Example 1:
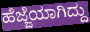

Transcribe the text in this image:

ಹೆಜ್ಜೆಯಾಗಿದ್ದು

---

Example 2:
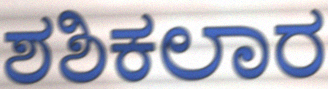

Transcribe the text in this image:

ಶಶಿಕಲಾರ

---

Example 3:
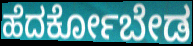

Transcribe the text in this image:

ಹೆದರ್ಕೋಬೇಡ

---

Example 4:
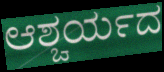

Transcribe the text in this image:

ಆಶ್ಚರ್ಯದ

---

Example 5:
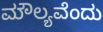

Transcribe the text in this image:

ಮೌಲ್ಯವೆಂದು